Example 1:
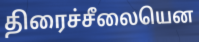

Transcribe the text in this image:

திரைச்சீலையென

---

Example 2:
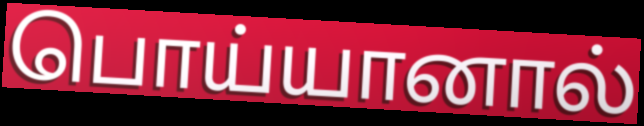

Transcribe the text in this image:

பொய்யானால்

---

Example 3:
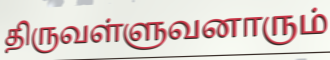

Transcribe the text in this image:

திருவள்ளுவனாரும்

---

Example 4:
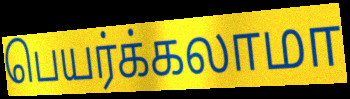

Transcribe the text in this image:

பெயர்க்கலாமா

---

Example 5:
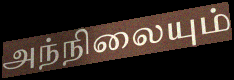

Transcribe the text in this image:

அந்நிலையும்